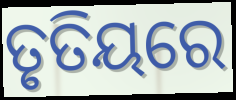
ତୃତିୟରେ